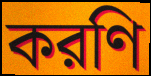
করণি